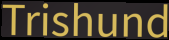
Trishund